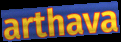
arthava